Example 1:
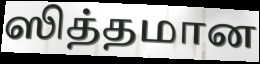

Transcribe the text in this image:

ஸித்தமான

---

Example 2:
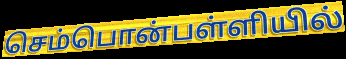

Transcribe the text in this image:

செம்பொன்பள்ளியில்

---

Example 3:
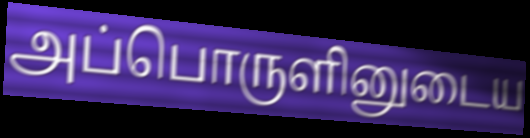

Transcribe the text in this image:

அப்பொருளினுடைய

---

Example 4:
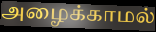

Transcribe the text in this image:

அழைக்காமல்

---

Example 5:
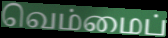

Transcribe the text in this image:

வெம்மைப்